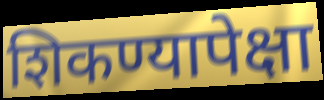
शिकण्यापेक्षा